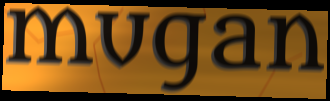
mugan